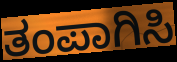
ತಂಪಾಗಿಸಿ